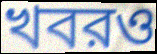
খবরও